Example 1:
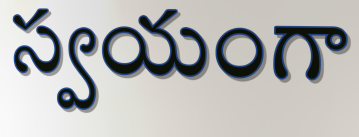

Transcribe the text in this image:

స్వయంగా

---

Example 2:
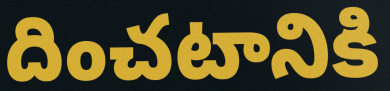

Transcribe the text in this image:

దించటానికి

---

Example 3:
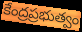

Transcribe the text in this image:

కేంద్రప్రభుత్వం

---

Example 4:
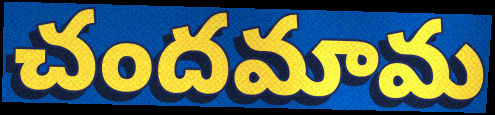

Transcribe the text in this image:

చందమామ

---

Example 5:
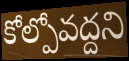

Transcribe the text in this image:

కోల్పోవద్దని